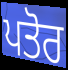
ਪਤੋਰ